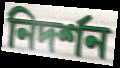
নিদৰ্শন